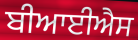
ਬੀਆਈਐਸ